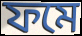
ফমে